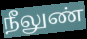
நீலுண்